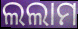
ଲଲାମ